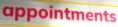
appointments